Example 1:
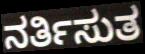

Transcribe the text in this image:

ನರ್ತಿಸುತ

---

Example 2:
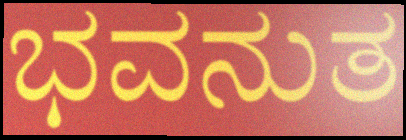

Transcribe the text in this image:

ಭವನುತ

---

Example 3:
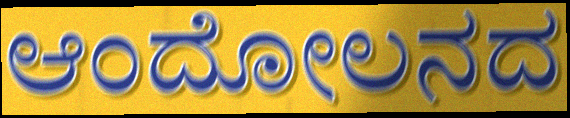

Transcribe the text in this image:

ಆಂದೋಲನದ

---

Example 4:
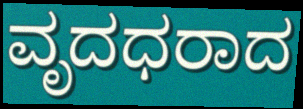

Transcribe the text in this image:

ವೃದಧರಾದ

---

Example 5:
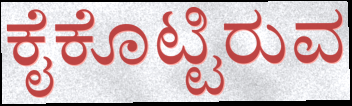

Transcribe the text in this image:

ಕೈಕೊಟ್ಟಿರುವ